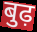
बुढ़